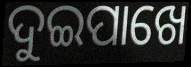
ଦୁଇପାଖେ